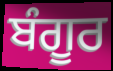
ਬੰਗੂਰ